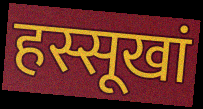
हस्सूखां